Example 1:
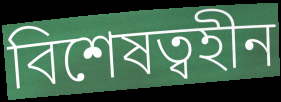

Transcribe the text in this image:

বিশেষত্বহীন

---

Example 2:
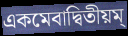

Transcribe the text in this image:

একমেবাদ্বিতীয়ম্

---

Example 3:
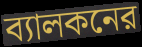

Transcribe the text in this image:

ব্যালকনের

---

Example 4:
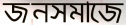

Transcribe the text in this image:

জনসমাজে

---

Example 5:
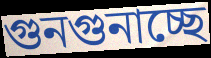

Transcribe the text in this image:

গুনগুনাচ্ছে